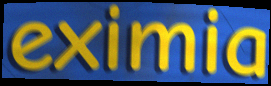
eximia